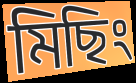
মিছিং